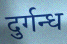
दुर्गन्‍ध